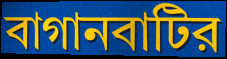
বাগানবাটির